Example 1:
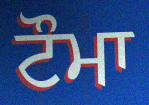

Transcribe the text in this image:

ਟੌਮਾ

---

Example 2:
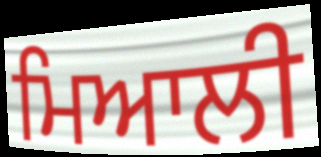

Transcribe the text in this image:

ਮਿਆਲੀ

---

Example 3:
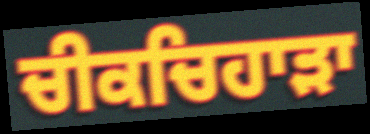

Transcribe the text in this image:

ਚੀਕਚਿਹਾੜਾ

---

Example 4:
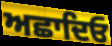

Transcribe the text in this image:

ਅਛਾਦਿਓ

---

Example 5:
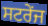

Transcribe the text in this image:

ਸਟਰੇਂਜ